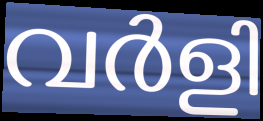
വർളി